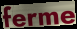
ferme